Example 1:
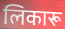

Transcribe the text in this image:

लिकारू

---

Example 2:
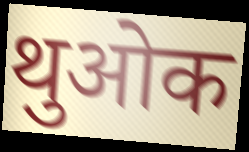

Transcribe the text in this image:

थुओक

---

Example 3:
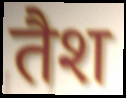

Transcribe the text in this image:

तैश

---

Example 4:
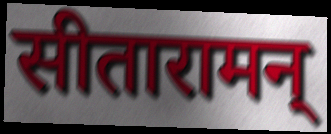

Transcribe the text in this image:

सीतारामन्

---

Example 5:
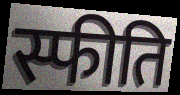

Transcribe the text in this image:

स्फीति